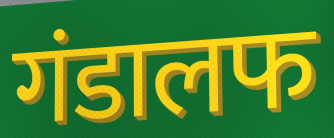
गंडालफ